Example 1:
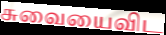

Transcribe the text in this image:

சுவையைவிட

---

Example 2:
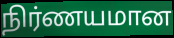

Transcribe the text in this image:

நிர்ணயமான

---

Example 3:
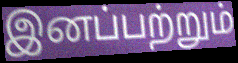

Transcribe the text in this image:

இனப்பற்றும்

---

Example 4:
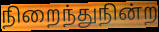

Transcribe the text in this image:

நிறைந்துநின்ற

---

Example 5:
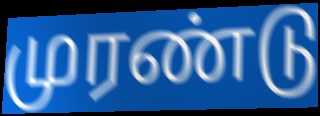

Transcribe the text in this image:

முரண்டு